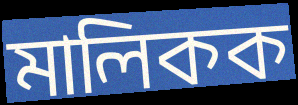
মালিকক